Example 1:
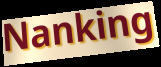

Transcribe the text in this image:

Nanking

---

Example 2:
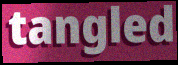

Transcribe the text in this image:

tangled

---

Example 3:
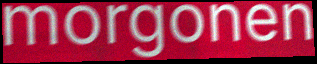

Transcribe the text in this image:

morgonen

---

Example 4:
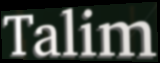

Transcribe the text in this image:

Talim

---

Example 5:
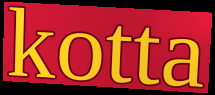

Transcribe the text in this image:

kotta